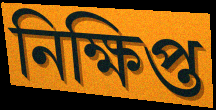
নিক্ষিপ্ত